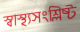
স্বাস্থ্যসংশ্লিষ্ট